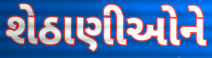
શેઠાણીઓને